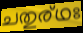
ചതുര്ഥഃ